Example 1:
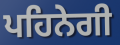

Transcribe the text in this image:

ਪਹਿਨੇਗੀ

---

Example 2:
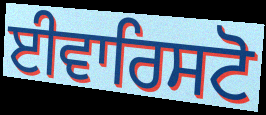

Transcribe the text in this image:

ਈਵਾਰਿਸਟੋ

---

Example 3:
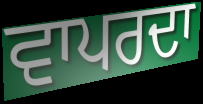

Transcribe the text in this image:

ਵਾਪਰਦਾ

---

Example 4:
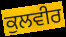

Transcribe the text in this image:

ਕੁਲਵੀਰ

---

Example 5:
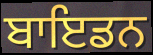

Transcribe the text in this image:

ਬਾਇਡਨ